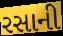
રસાની